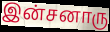
இன்சனாரு